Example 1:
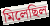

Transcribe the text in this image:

মিলেছিল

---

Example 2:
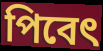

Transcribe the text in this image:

পিবেৎ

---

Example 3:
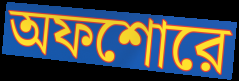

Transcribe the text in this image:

অফশোরে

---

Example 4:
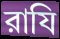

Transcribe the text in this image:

রাযি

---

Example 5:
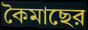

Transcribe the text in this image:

কৈমাছের